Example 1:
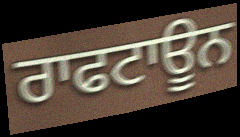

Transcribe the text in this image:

ਰਾਫਟਾਊਨ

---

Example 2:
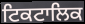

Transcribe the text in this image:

ਟਿਕਟਾਲਿਕ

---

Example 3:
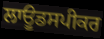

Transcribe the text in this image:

ਲਾਊਡਸਪੀਕਰ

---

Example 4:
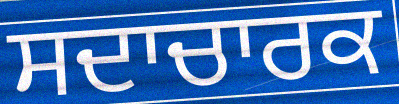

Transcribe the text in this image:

ਸਦਾਚਾਰਕ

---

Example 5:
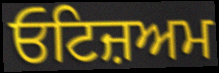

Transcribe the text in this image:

ਓਟਿਜ਼ਅਮ